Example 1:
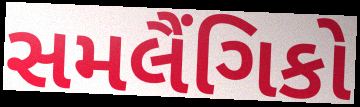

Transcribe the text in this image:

સમલૈંગિકો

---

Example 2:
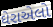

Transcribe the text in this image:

ઘેરાએલો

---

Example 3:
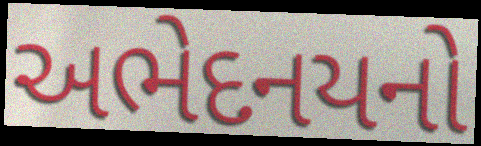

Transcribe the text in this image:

અભેદનયનો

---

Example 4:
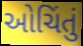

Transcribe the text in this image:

ઓચિંતું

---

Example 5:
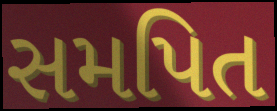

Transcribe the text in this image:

સમપિત